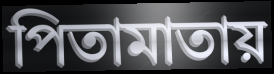
পিতামাতায়